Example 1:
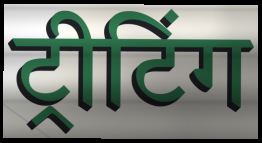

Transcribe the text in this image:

ट्रीटिंग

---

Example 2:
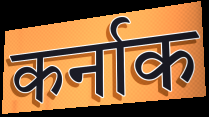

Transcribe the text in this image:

कर्नाक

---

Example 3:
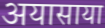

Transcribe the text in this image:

अयासाया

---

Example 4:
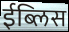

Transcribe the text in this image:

ईब्लिस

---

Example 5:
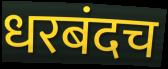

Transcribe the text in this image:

धरबंदच